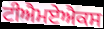
ਟੀਐਮਏਐਕਸ